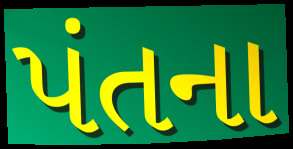
પંતના